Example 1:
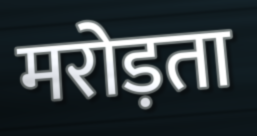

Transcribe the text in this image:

मरोड़ता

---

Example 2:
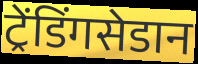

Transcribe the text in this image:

ट्रेंडिंगसेडान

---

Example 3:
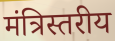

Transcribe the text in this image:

मंत्रिस्तरीय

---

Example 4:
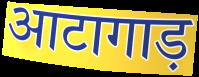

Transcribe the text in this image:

आटागाड़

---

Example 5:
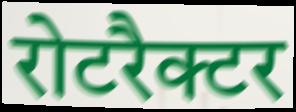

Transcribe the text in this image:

रोटरैक्टर